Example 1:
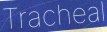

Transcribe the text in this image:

Tracheal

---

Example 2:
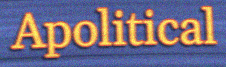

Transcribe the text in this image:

Apolitical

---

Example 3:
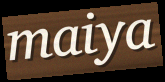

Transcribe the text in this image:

maiya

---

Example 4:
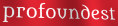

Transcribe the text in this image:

profoundest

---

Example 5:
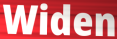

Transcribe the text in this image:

Widen